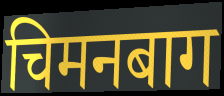
चिमनबाग